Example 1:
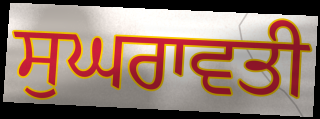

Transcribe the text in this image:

ਸੁਘਰਾਵਤੀ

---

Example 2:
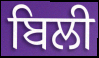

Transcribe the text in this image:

ਬਿਲੀ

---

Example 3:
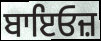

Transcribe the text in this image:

ਬਾਇਓਜ਼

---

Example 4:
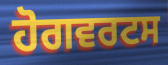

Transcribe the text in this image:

ਹੋਗਵਰਟਸ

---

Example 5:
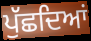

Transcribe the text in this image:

ਪੁੱਛਦਿਆਂ